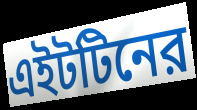
এইটটিনের